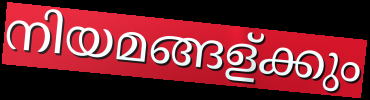
നിയമങ്ങള്ക്കും